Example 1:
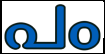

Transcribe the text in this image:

പം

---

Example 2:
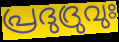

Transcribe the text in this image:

പ്രദുദ്രുവുഃ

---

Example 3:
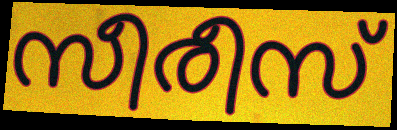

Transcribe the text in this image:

സീരീസ്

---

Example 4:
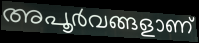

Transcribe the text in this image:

അപൂർവങ്ങളാണ്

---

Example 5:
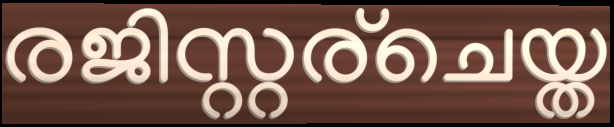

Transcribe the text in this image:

രജിസ്റ്റര്ചെയ്ത